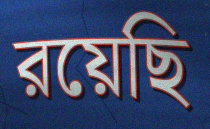
রয়েছি